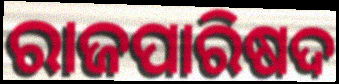
ରାଜପାରିଷଦ